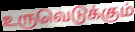
உருவெடுக்கும்